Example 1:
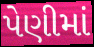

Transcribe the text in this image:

પેણીમાં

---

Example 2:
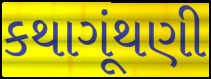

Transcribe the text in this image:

કથાગૂંથણી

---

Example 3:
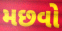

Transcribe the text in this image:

મછવો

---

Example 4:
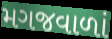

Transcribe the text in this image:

મગજવાળાં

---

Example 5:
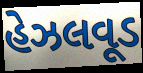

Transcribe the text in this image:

હેઝલવૂડ